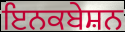
ਇਨਕਬੇਸ਼ਨ